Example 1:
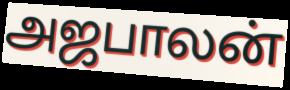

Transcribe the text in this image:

அஜபாலன்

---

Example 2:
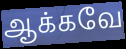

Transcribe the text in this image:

ஆக்கவே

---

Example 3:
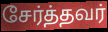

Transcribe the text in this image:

சேர்த்தவர்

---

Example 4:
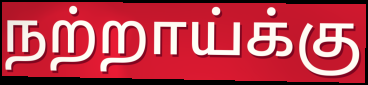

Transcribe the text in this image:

நற்றாய்க்கு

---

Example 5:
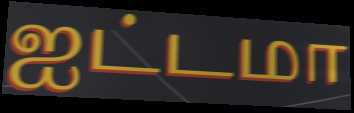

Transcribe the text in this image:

ஐட்டமா